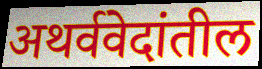
अथर्ववेदांतील